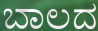
ಬಾಲದ